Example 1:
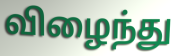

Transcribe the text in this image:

விழைந்து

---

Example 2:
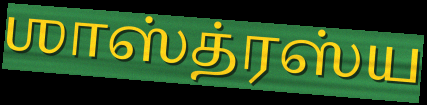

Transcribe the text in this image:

ஶாஸ்த்ரஸ்ய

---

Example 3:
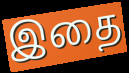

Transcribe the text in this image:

இதை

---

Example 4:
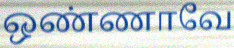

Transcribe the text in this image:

ஒண்ணாவே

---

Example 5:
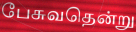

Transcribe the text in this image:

பேசுவதென்று